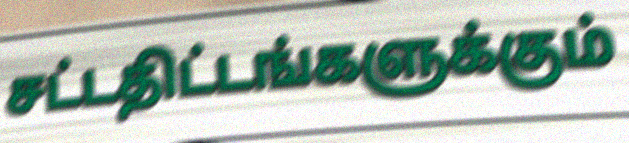
சட்டதிட்டங்களுக்கும்